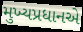
મુખ્યપ્રધાનએ